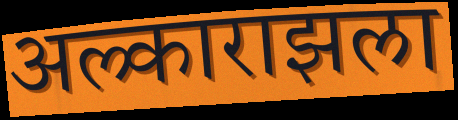
अल्काराझला